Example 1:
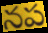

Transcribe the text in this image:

నప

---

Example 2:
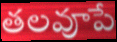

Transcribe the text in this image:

తలవూపే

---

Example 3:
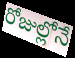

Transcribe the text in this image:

రోజుల్లోనే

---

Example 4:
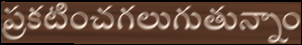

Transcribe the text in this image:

ప్రకటించగలుగుతున్నాం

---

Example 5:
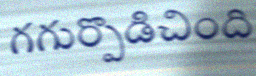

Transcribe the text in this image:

గగుర్పొడిచింది